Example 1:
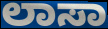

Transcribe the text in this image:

ಲಾಸಾ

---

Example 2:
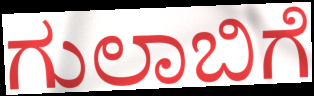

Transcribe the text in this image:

ಗುಲಾಬಿಗೆ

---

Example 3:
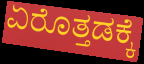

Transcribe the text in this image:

ಏರೊತ್ತಡಕ್ಕೆ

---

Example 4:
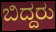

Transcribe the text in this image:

ಬಿದ್ದರು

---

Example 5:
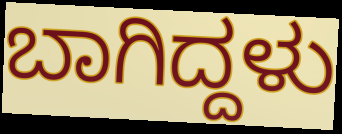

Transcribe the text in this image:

ಬಾಗಿದ್ದಳು